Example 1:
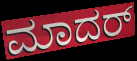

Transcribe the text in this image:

ಮಾದರ್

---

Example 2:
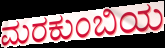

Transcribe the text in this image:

ಮರಕುಂಬಿಯ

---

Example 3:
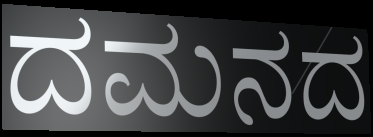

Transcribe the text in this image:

ದಮನದ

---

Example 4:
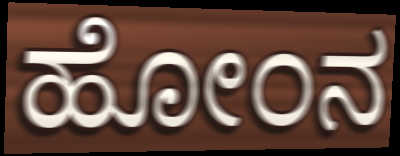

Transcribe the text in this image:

ಹೋಂನ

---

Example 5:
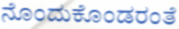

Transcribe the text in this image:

ನೊಂದುಕೊಂಡರಂತೆ